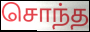
சொந்த